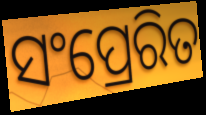
ସଂପ୍ରେରିତ